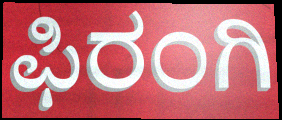
ಫಿರಂಗಿ